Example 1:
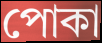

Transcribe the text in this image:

পোকা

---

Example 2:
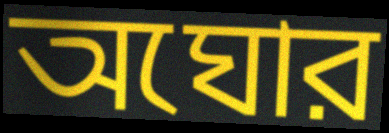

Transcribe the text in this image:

অঘোর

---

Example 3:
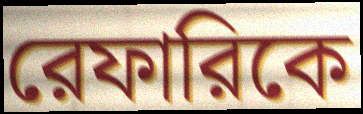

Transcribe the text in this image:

রেফারিকে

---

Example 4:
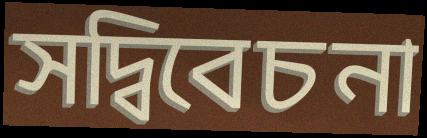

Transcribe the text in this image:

সদ্বিবেচনা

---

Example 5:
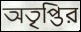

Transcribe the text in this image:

অতৃপ্তির